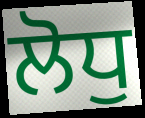
ਲੋਧੁ